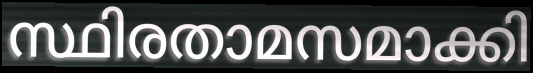
സ്ഥിരതാമസമാക്കി